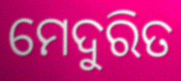
ମେଦୁରିତ